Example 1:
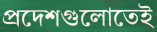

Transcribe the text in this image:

প্রদেশগুলোতেই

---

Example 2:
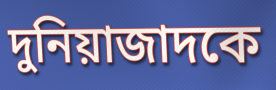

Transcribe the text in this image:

দুনিয়াজাদকে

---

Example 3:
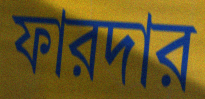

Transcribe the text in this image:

ফারদার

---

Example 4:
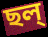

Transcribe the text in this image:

ছল্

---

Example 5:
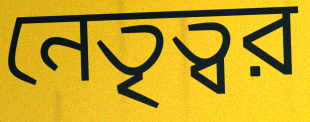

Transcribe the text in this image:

নেতৃত্বর